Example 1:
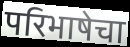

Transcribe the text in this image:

परिभाषेचा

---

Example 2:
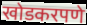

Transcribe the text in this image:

खोडकरपणे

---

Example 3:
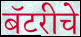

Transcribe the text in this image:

बॅटरीचे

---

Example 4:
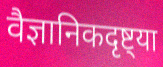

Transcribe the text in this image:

वैज्ञानिकदृष्ट्या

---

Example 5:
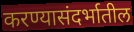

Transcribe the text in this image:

करण्यासंदर्भातील